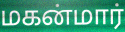
மகன்மார்